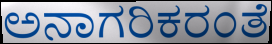
ಅನಾಗರಿಕರಂತೆ